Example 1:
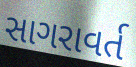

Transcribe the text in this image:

સાગરાવર્ત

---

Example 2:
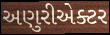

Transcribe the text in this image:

અણુરીએક્ટર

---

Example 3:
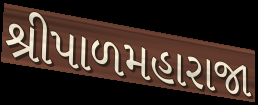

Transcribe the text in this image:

શ્રીપાળમહારાજા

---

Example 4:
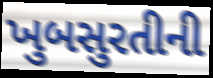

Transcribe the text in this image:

ખુબસુરતીની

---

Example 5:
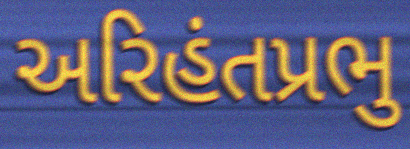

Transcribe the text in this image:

અરિહંતપ્રભુ